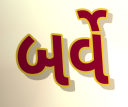
બર્વે